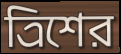
ত্রিশের